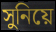
সুনিয়ে